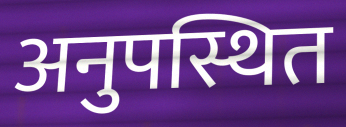
अनुपस्थित